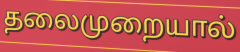
தலைமுறையால்